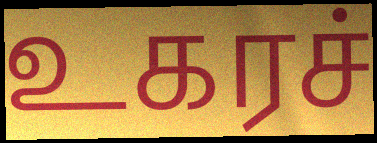
உகரச்